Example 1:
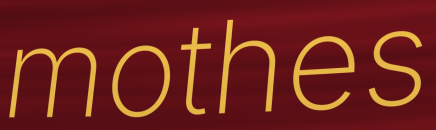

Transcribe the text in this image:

mothes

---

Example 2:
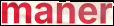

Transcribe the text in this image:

maner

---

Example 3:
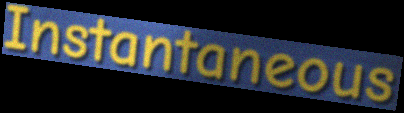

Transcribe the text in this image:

Instantaneous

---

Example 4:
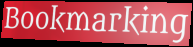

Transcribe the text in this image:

Bookmarking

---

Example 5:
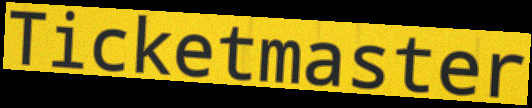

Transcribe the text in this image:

Ticketmaster